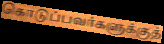
கொடுப்பவர்களுக்குத்